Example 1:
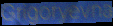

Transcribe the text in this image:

Grigoryevna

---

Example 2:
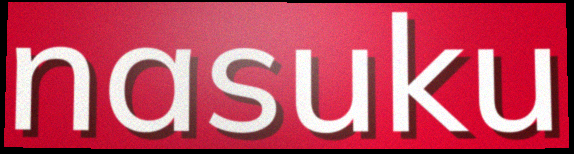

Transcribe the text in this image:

nasuku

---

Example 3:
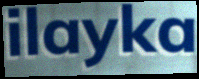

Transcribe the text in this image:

ilayka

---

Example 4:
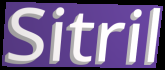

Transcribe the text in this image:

Sitril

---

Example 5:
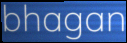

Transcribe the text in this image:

bhagan